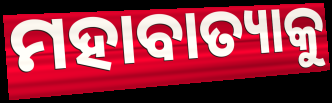
ମହାବାତ୍ୟାକୁ